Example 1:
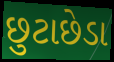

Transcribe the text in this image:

છુટાછેડા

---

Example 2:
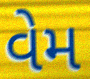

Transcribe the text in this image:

વેમ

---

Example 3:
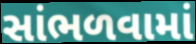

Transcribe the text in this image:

સાંભળવામાં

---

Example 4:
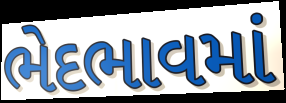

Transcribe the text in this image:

ભેદભાવમાં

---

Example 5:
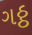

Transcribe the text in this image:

ગઠ્ઠ